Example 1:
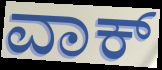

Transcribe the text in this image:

ವಾಕ್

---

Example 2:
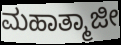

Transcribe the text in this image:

ಮಹಾತ್ಮಾಜೀ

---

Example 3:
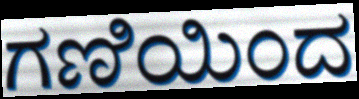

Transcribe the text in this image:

ಗಣಿಯಿಂದ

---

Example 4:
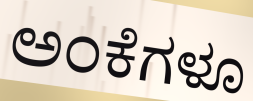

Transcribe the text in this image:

ಅಂಕೆಗಳೂ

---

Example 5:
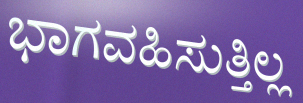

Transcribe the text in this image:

ಭಾಗವಹಿಸುತ್ತಿಲ್ಲ